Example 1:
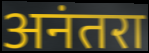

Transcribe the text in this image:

अनंतरा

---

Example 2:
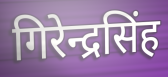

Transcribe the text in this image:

गिरेन्द्रसिंह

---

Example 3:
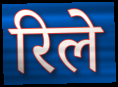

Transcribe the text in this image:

रिले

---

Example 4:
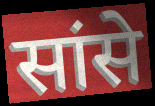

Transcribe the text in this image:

सांसे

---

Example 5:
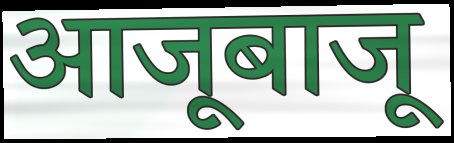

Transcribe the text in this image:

आजूबाजू